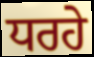
ਧਰਹੇ